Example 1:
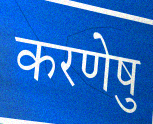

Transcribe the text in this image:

करणेषु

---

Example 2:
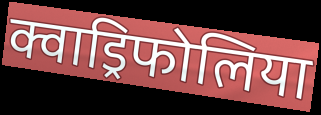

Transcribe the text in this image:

क्वाड्रिफोलिया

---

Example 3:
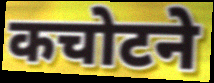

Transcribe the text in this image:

कचोटने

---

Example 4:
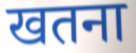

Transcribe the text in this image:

खतना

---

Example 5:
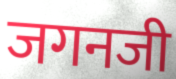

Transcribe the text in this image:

जगनजी